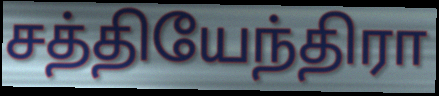
சத்தியேந்திரா